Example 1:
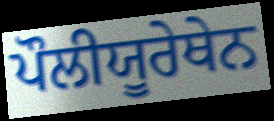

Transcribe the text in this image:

ਪੌਲੀਯੂਰੇਥੇਨ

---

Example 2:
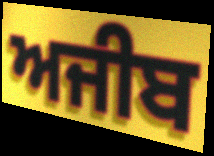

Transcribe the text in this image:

ਅਜੀਬ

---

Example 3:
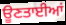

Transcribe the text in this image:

ਊਣਤਾਈਆਂ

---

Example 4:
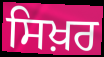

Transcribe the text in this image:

ਸਿਖ਼ਰ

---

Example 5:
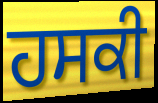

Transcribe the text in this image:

ਹਸਕੀ